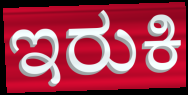
ಇರುಕಿ